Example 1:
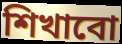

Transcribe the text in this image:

শিখাবো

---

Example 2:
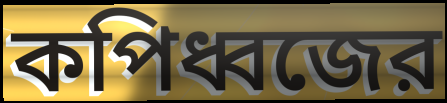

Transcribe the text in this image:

কপিধ্বজের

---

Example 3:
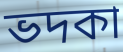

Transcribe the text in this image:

ভদকা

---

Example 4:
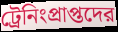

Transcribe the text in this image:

ট্রেনিংপ্রাপ্তদের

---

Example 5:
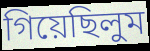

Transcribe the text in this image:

গিয়েছিলুম